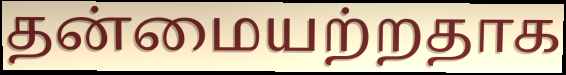
தன்மையற்றதாக